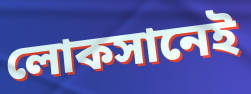
লোকসানেই